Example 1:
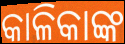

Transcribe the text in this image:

କାଳିକାଙ୍କ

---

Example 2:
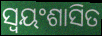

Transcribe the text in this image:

ସ୍ୱୟଂଶାସିତ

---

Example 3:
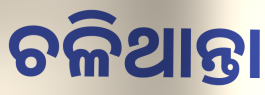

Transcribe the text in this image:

ଚଳିଥାନ୍ତା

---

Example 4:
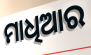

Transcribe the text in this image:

ମାଧିଆର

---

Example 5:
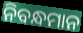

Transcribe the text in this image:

ନିବନ୍ଧମାନ